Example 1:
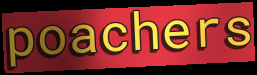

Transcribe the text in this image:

poachers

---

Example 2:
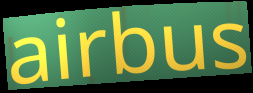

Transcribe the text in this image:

airbus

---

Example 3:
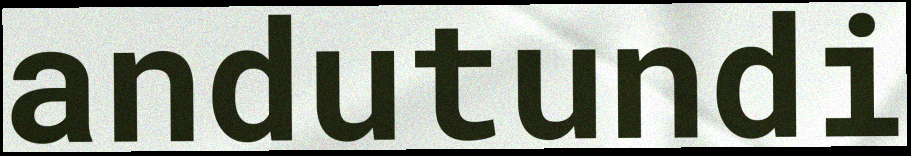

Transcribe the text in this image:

andutundi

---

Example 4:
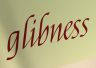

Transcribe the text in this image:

glibness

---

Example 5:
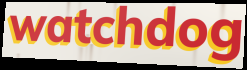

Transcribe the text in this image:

watchdog